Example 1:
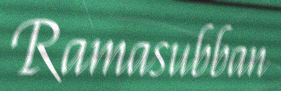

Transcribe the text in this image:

Ramasubban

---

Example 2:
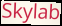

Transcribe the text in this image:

Skylab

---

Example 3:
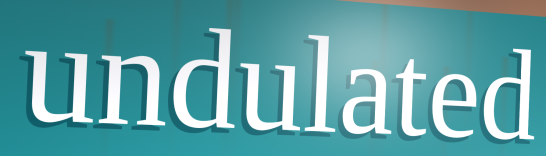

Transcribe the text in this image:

undulated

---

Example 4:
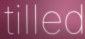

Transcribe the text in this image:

tilled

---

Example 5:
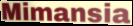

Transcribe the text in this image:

Mimansia